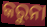
କରୁନା